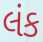
લંક